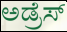
ಅಡ್ರೆಸ್